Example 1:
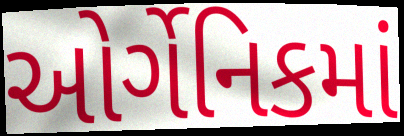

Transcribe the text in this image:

ઓર્ગેનિકમાં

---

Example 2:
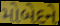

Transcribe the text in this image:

મોબેદને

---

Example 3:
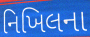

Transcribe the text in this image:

નિખિલના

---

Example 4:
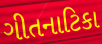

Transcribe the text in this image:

ગીતનાટિકા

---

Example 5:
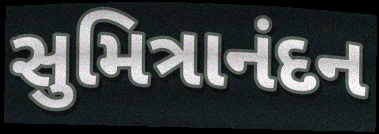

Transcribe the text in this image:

સુમિત્રાનંદન